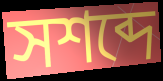
সশব্দে